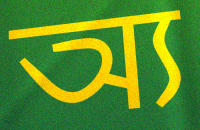
অ্য